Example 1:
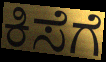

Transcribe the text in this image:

ಕಿಸೆಗೆ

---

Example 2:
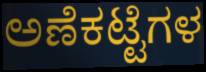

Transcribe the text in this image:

ಅಣೆಕಟ್ಟೆಗಳ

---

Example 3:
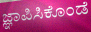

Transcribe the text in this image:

ಜ್ಞಾಪಿಸಿಕೊಂಡೆ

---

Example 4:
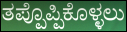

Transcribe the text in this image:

ತಪ್ಪೊಪ್ಪಿಕೊಳ್ಳಲು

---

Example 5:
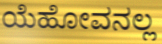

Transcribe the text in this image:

ಯೆಹೋವನಲ್ಲ